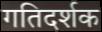
गतिदर्शक